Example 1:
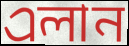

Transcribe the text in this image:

এলান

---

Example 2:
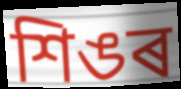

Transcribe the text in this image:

শিঙৰ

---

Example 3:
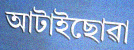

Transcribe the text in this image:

আটাইছোৱা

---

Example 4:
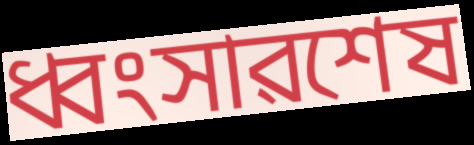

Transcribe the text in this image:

ধ্বংসাৱশেষ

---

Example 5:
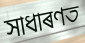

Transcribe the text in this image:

সাধাৰণত